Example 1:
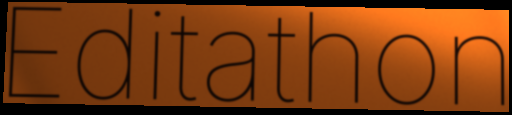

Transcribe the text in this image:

Editathon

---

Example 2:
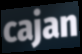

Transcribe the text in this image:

cajan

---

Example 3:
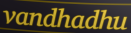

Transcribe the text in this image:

vandhadhu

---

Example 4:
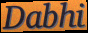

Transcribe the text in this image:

Dabhi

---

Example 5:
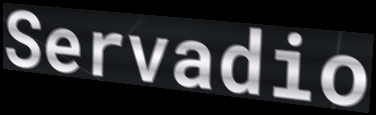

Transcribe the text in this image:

Servadio